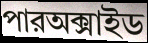
পারঅক্সাইড